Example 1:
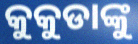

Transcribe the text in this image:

କୁକୁଡାଙ୍କୁ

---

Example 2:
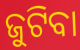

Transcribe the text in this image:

ଜୁଟିବା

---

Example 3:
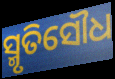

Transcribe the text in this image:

ସ୍ମୃତିସୌଧ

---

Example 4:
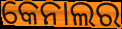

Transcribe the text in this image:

କେନାଲର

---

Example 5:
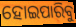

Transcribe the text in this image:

ହୋଇପାରିବୁ